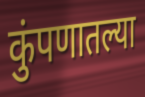
कुंपणातल्या